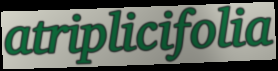
atriplicifolia